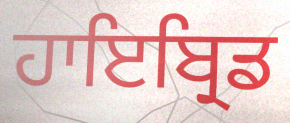
ਹਾਇਬ੍ਰਿਡ